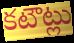
కటౌట్లు